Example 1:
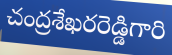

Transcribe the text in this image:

చంద్రశేఖరరెడ్డిగారి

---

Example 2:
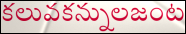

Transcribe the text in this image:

కలువకన్నులజంట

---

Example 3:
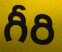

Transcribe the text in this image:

గీరి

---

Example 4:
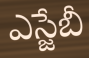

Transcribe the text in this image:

ఎస్జేబీ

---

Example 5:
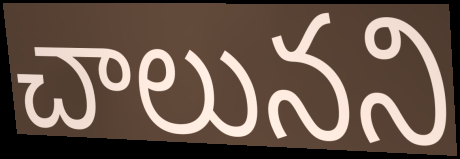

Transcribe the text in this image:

చాలునని